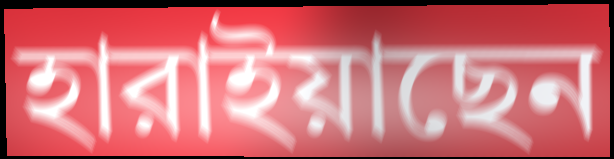
হারাইয়াছেন